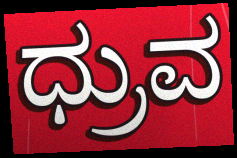
ಧ್ರುವ